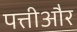
पत्तीऔर